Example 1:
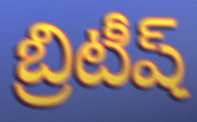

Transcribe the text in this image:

బ్రిటీష్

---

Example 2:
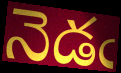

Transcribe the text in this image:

నెడఁ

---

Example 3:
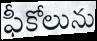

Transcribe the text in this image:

ఫీకోలును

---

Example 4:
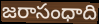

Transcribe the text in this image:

జరాసంధాది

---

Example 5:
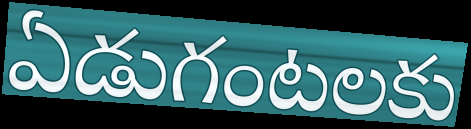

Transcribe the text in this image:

ఏడుగంటలకు